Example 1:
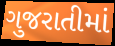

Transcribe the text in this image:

ગુજરાતીમાં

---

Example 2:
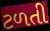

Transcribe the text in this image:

ટળતી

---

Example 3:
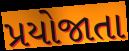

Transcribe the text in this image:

પ્રયોજાતા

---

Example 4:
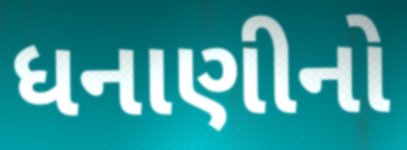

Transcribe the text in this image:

ધનાણીનો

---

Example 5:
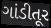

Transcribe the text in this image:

ગાંડીતૂર